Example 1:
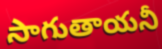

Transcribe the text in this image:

సాగుతాయనీ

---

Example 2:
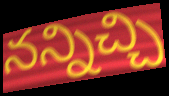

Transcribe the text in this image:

నన్నిచ్చి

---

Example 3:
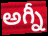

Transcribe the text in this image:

అగ్నీ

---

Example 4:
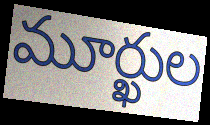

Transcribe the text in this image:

మూర్ఖుల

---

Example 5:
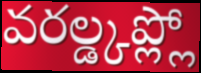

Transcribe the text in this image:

వరల్డ్కప్ల్లో